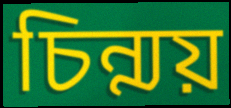
চিন্ময়